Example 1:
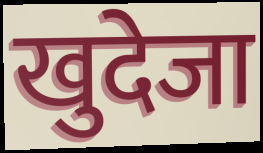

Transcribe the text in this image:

खुदेजा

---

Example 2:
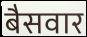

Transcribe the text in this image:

बैसवार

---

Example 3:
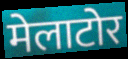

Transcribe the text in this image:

मेलाटोर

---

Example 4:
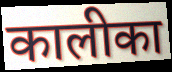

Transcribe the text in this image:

कालीका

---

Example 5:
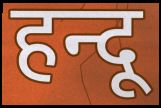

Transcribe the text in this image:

हन्दू